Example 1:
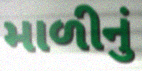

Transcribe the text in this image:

માળીનું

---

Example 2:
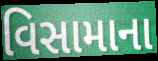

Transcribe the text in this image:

વિસામાના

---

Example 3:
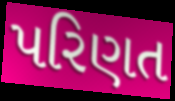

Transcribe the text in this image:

પરિણત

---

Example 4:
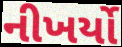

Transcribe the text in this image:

નીખર્યો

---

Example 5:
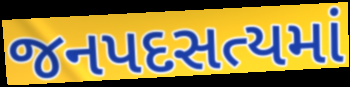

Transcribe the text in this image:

જનપદસત્યમાં